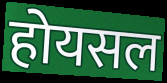
होयसल